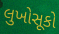
લુખોસૂકો